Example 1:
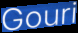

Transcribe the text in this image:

Gouri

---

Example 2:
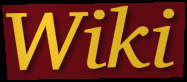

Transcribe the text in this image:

Wiki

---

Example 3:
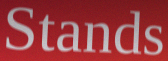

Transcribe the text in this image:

Stands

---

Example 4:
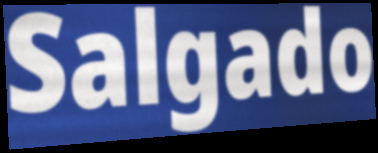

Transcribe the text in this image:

Salgado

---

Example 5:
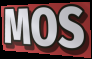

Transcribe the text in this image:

MOS